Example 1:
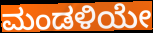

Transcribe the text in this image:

ಮಂಡಳಿಯೇ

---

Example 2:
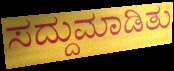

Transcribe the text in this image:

ಸದ್ದುಮಾಡಿತು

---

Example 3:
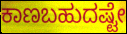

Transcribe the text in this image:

ಕಾಣಬಹುದಷ್ಟೇ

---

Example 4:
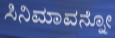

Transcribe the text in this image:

ಸಿನಿಮಾವನ್ನೋ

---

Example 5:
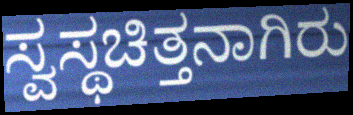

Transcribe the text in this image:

ಸ್ವಸ್ಥಚಿತ್ತನಾಗಿರು